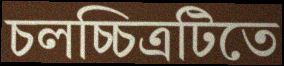
চলচ্চিত্রটিতে